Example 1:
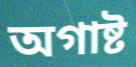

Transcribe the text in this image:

অগাষ্ট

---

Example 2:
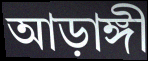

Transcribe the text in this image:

আড়াঙ্গী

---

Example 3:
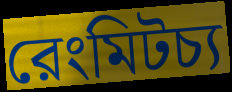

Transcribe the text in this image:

রেংমিটচ্য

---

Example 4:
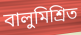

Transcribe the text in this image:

বালুমিশ্রিত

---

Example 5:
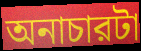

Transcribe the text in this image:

অনাচারটা